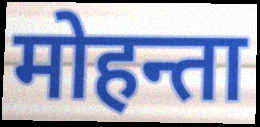
मोहन्ता